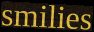
smilies